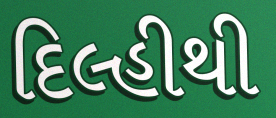
દિલ્હીથી